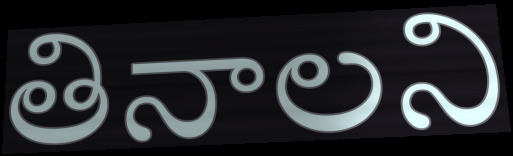
తినాలని